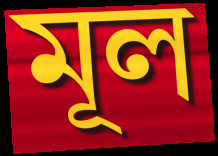
মূল